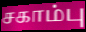
சகாம்பு